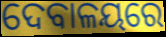
ଦେବାଳୟରେ